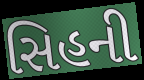
સિહની